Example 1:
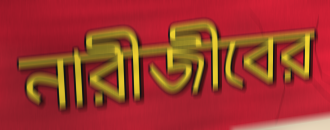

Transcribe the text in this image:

নারীজীবের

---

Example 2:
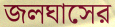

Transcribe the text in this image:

জলঘাসের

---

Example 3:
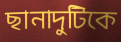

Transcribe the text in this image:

ছানাদুটিকে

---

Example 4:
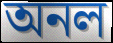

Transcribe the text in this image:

অনল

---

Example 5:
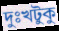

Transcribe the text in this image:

দুঃখটুকু